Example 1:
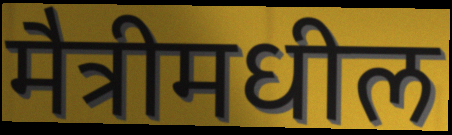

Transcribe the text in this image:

मैत्रीमधील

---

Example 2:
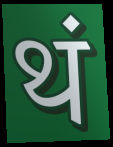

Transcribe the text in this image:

थं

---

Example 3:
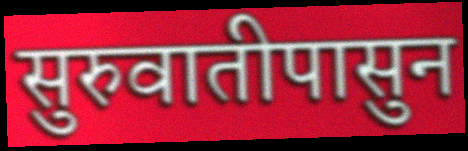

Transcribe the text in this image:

सुरुवातीपासुन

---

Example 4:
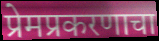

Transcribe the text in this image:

प्रेमप्रकरणाचा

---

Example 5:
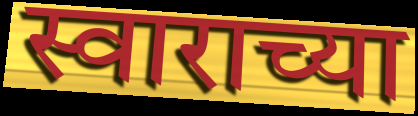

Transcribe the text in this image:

स्वाराच्या